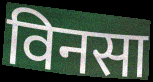
विनसा